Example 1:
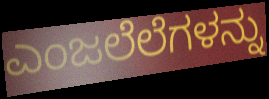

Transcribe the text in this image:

ಎಂಜಲೆಲೆಗಳನ್ನು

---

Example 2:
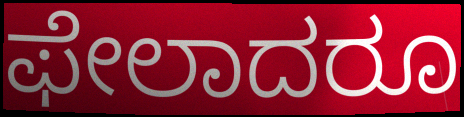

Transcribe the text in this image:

ಫೇಲಾದರೂ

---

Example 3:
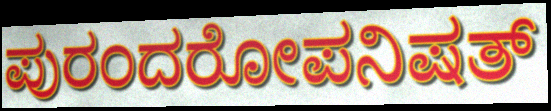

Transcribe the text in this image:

ಪುರಂದರೋಪನಿಷತ್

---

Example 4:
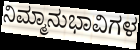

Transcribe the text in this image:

ನಿಮ್ಮಾನುಭಾವಿಗಳ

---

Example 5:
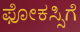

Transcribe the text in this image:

ಫೋಕಸ್ಸಿಗೆ